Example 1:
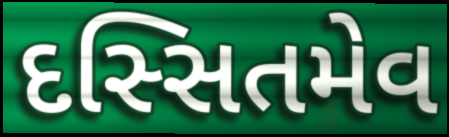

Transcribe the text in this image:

દસ્સિતમેવ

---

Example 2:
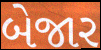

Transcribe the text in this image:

બેજાર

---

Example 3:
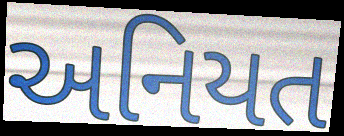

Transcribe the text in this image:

અનિયત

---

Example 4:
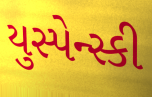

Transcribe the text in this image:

યુસ્પેન્સ્કી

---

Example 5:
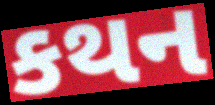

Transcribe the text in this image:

કથન